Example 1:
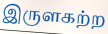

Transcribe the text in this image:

இருளகற்ற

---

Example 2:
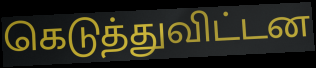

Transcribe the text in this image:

கெடுத்துவிட்டன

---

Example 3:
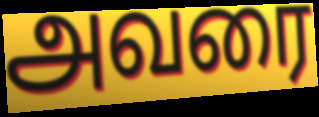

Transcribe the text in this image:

அவரை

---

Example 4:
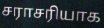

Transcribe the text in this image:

சராசரியாக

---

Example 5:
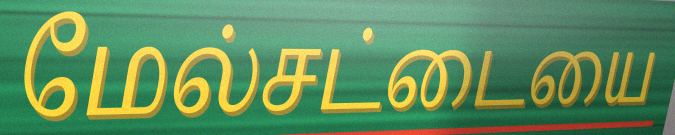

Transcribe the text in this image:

மேல்சட்டையை